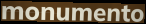
monumento